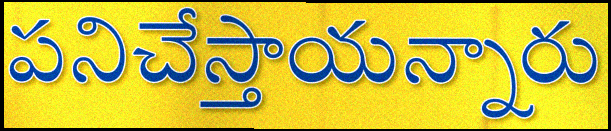
పనిచేస్తాయన్నారు